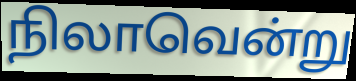
நிலாவென்று